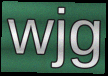
wjg